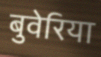
बुवेरिया